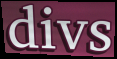
divs